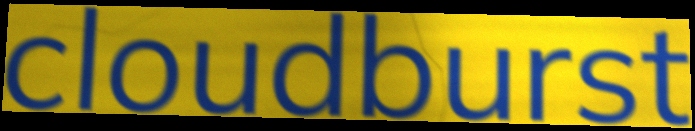
cloudburst